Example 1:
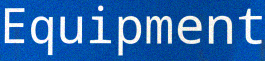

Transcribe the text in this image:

Equipment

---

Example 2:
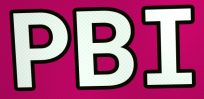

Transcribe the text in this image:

PBI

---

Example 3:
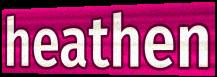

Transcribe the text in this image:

heathen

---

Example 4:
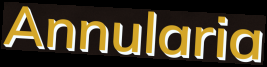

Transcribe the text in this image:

Annularia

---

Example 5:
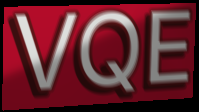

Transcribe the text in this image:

VQE